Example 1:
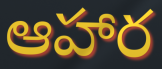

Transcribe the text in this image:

ఆహార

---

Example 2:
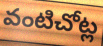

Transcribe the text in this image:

వంటిచోట్ల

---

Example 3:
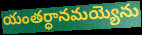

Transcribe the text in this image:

యంతర్ధానమయ్యెను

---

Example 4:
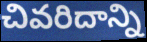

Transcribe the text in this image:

చివరిదాన్ని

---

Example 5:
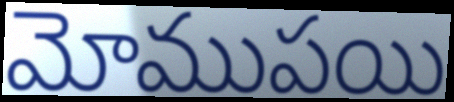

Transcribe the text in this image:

మోముపయి